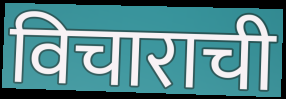
विचाराची